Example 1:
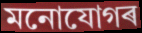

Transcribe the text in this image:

মনোযোগৰ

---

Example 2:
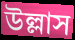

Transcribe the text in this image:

উল্লাস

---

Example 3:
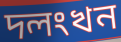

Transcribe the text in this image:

দলংখন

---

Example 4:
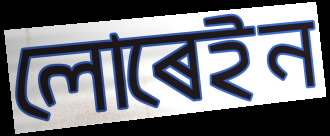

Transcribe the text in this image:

লোৰেইন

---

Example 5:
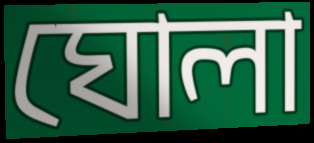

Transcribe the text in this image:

ঘোলা